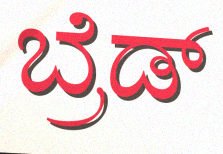
ಬ್ರೆಡ್